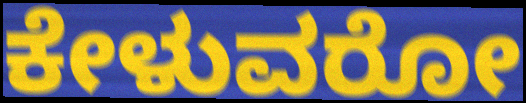
ಕೇಳುವರೋ